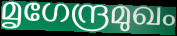
മൃഗേന്ദ്രമുഖം